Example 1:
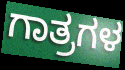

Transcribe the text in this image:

ಗಾತ್ರಗಳ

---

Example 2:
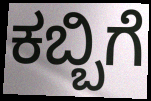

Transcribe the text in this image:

ಕಬ್ಬಿಗೆ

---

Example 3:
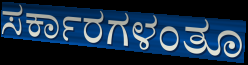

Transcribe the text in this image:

ಸರ್ಕಾರಗಳಂತೂ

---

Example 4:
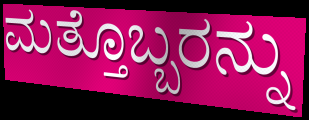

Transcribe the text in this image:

ಮತ್ತೊಬ್ಬರನ್ನು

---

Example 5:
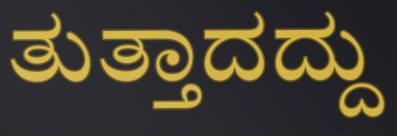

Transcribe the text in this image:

ತುತ್ತಾದದ್ದು